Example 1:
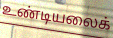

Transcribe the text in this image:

உண்டியலைக்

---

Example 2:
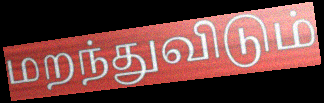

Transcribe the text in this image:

மறந்துவிடும்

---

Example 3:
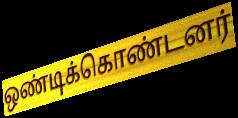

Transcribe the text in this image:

ஒண்டிக்கொண்டனர்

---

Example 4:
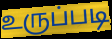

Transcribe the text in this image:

உருப்படி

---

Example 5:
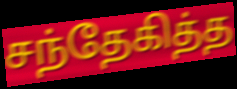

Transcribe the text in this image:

சந்தேகித்த